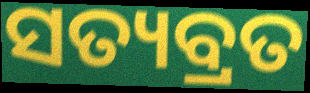
ସତ୍ୟବ୍ରତ